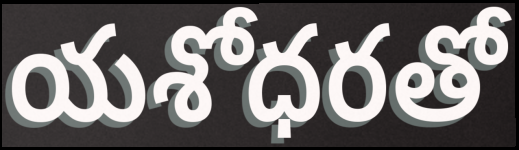
యశోధరతో